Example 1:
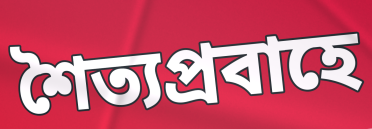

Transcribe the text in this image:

শৈত্যপ্রবাহে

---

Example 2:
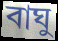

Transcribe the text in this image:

বাঘু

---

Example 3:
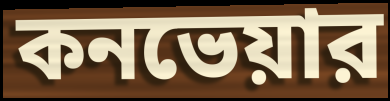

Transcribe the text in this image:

কনভেয়ার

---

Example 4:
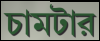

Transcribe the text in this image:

চামটার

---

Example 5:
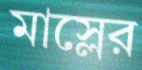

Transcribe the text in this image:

মাস্লের